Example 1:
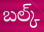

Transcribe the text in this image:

బల్క్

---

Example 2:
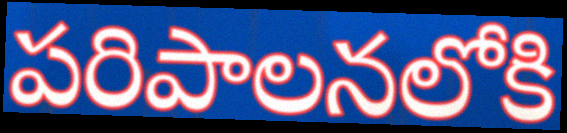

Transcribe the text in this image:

పరిపాలనలోకి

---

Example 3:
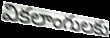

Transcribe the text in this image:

వికలాంగులకు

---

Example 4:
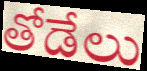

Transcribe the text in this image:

తోడేలు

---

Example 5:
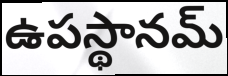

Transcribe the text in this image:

ఉపస్థానమ్